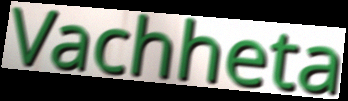
Vachheta